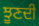
ਝੂਣਦੀ